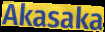
Akasaka